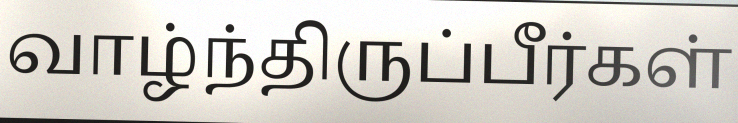
வாழ்ந்திருப்பீர்கள்